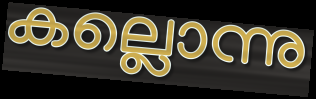
കല്ലൊന്നു